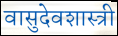
वासुदेवशास्त्री